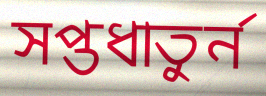
সপ্তধাতুর্ন